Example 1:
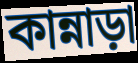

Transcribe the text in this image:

কান্নাড়া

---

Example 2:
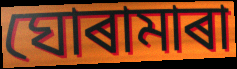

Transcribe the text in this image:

ঘোৰামাৰা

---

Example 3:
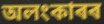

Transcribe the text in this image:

অলংকাৰৰ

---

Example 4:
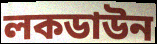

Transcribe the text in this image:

লকডাউন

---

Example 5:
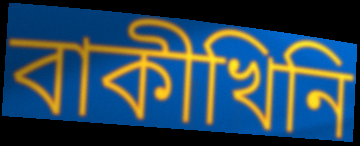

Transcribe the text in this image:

বাকীখিনি